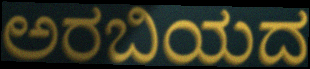
ಅರಬಿಯದ